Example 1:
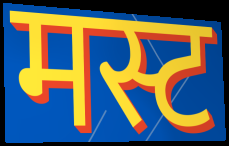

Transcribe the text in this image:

मस्ट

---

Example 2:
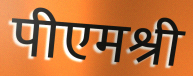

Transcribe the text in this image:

पीएमश्री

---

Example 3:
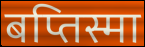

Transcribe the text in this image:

बप्तिस्मा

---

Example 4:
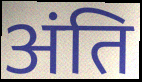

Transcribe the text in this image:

अंति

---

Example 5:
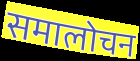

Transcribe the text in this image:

समालोचन